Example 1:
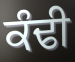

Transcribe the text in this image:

ਕੰਢੀ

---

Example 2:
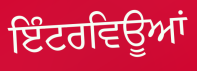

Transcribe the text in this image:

ਇੰਟਰਵਿਊਆਂ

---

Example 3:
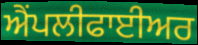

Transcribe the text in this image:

ਐੰਪਲੀਫਾਈਅਰ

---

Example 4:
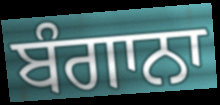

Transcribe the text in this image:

ਬੰਗਾਨਾ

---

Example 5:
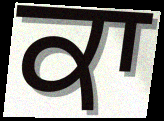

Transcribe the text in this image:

ਕਾ